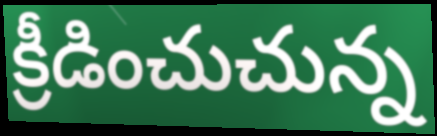
క్రీడించుచున్న